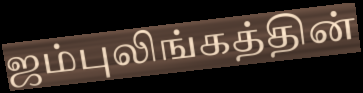
ஜம்புலிங்கத்தின்